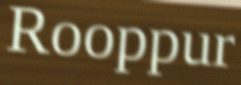
Rooppur